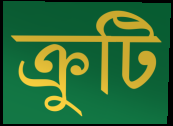
ক্রুটি